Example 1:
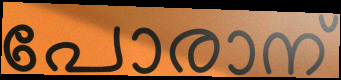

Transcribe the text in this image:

പോരാന്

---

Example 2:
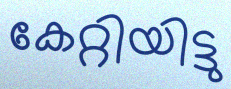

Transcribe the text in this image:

കേറ്റിയിട്ടു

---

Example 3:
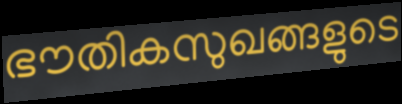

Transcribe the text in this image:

ഭൗതികസുഖങ്ങളുടെ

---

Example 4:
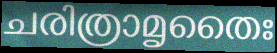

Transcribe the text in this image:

ചരിത്രാമൃതൈഃ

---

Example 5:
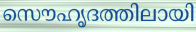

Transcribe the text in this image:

സൌഹൃദത്തിലായി